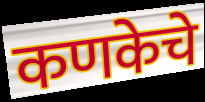
कणकेचे